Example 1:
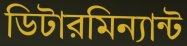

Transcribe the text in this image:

ডিটারমিন্যান্ট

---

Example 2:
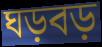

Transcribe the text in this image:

ঘড়বড়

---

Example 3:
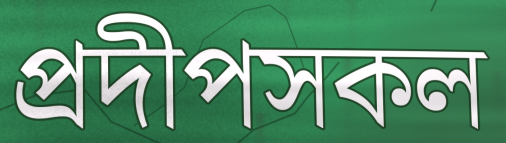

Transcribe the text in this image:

প্রদীপসকল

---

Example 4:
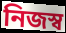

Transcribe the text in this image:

নিজস্ব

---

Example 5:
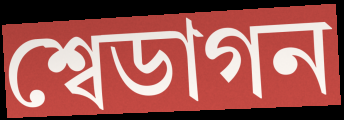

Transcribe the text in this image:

শ্বেডাগন